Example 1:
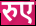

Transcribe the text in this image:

रुए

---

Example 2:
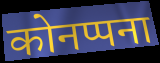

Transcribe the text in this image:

कोनप्पना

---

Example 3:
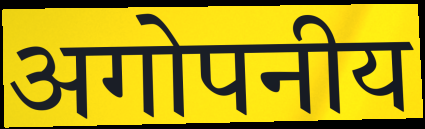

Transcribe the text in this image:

अगोपनीय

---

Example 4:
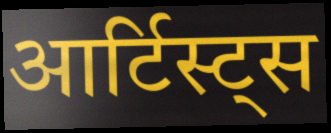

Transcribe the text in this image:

आर्टिस्ट्स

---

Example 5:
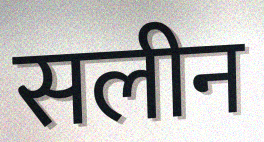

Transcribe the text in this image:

सलीन